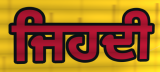
ਜਿਹਦੀ